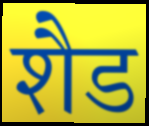
शैड